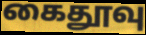
கைதூவு